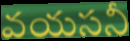
వయసనీ